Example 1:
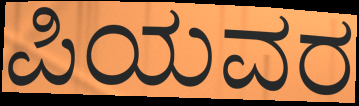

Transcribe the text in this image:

ಪಿಯವರ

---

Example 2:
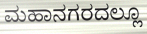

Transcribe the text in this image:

ಮಹಾನಗರದಲ್ಲೂ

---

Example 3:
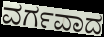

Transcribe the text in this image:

ವರ್ಗವಾದ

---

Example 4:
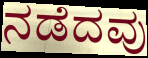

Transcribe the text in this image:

ನಡೆದವು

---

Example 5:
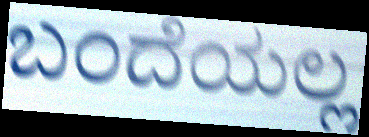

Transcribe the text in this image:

ಬಂದೆಯಲ್ಲ